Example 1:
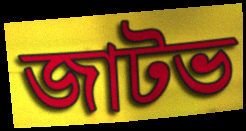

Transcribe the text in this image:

জাটভ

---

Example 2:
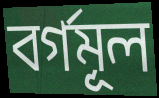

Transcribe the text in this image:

বৰ্গমূল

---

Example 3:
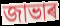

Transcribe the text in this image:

জাভাৰ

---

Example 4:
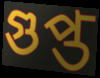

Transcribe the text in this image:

গুপ্ত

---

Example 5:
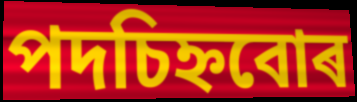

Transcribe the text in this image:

পদচিহ্নবোৰ